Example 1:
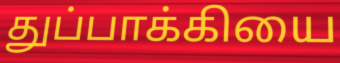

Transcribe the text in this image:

துப்பாக்கியை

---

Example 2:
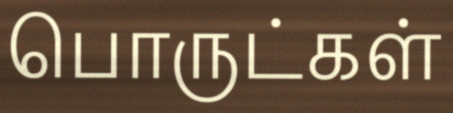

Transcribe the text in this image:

பொருட்கள்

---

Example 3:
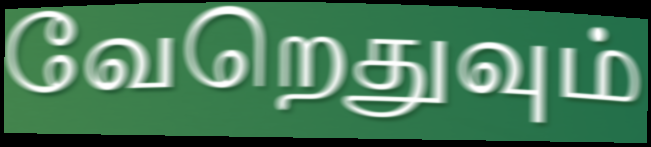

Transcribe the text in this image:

வேறெதுவும்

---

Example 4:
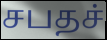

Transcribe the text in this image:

சபதச்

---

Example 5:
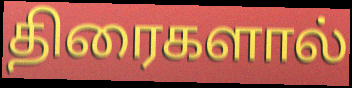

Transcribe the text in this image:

திரைகளால்